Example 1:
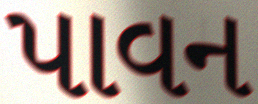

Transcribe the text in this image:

પાવન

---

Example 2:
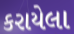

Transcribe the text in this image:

કરાયેલા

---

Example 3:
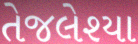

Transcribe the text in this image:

તેજલેશ્યા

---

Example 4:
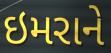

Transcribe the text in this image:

ઇમરાને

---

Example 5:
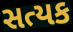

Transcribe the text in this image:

સત્યક